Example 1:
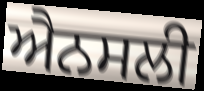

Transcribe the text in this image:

ਐਨਸਲੀ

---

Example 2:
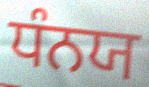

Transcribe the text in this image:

ਧੰਨਯ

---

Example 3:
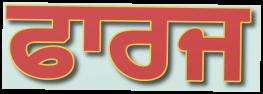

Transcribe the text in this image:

ਫਾਰਜ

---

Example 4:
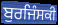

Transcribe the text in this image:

ਬੁਰਜਿੰਸਕੀ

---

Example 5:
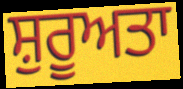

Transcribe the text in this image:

ਸ਼ੁਰੂਅਤਾ